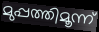
മുപ്പത്തിമൂന്ന്